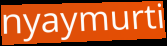
nyaymurti